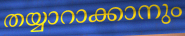
തയ്യാറാക്കാനും